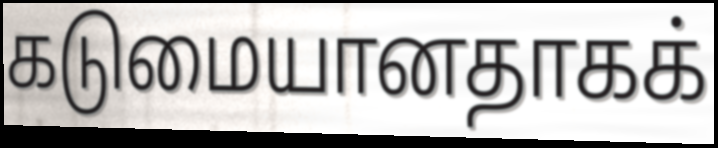
கடுமையானதாகக்